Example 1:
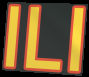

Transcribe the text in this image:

ILI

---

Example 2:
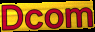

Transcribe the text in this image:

Dcom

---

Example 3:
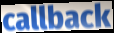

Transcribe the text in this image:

callback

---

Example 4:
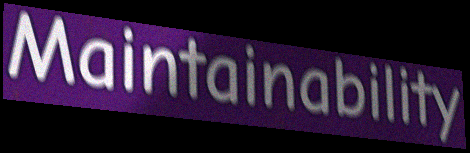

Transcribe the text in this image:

Maintainability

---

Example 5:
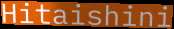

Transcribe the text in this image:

Hitaishini